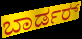
ಬಾರ್ಡರ್‍